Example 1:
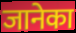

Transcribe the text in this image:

जानेका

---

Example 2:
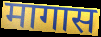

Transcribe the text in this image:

मागास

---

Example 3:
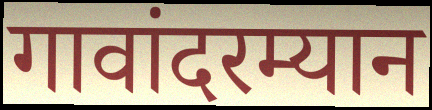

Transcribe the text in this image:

गावांदरम्यान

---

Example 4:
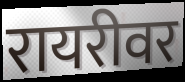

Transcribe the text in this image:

रायरीवर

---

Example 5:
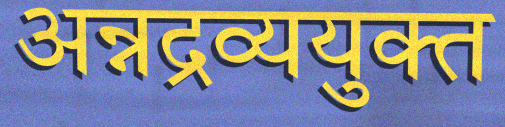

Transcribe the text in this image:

अन्नद्रव्ययुक्त